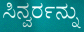
ಸಿನ್ವರ್ರನ್ನು